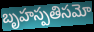
బృహస్పతిసమో